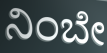
ನಿಂಬೇ